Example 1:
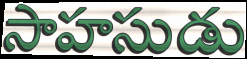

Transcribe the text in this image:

సాహసుడు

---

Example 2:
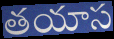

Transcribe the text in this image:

తయాస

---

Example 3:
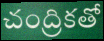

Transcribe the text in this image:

చంద్రికతో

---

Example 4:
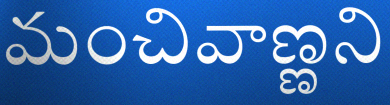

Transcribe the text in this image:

మంచివాణ్ణని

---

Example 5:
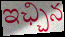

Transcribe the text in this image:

ఇఛ్చిన